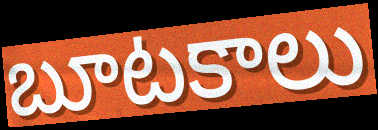
బూటకాలు